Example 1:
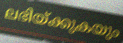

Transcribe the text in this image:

ലഭിയ്ക്കുകയും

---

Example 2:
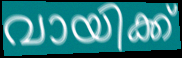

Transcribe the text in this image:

വായിക്ക്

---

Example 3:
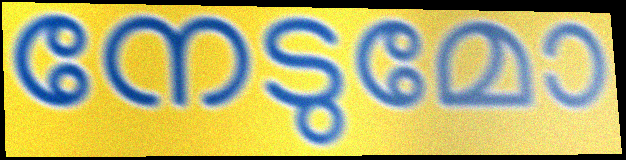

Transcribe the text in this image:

നേടുമോ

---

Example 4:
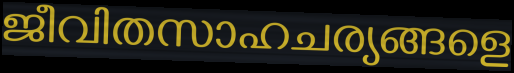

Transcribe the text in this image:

ജീവിതസാഹചര്യങ്ങളെ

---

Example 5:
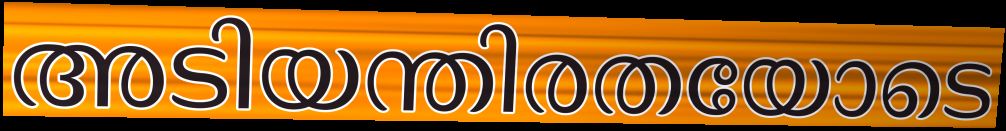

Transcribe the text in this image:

അടിയന്തിരതയോടെ